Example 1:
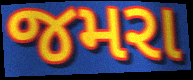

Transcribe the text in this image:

જમરા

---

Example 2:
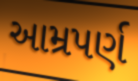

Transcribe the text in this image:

આમ્રપર્ણ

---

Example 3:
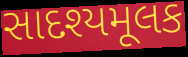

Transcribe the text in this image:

સાદશ્યમૂલક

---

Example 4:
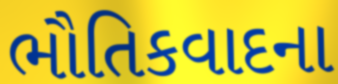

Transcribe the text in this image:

ભૌતિકવાદના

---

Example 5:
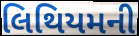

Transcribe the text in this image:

લિથિયમની